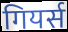
गियर्स